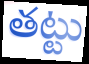
తట్టు